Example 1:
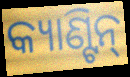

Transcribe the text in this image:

କ୍ୟାଣ୍ଟିନ୍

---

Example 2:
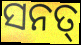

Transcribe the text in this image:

ସନତ୍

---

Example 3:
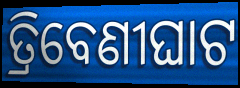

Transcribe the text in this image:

ତ୍ରିବେଣୀଘାଟ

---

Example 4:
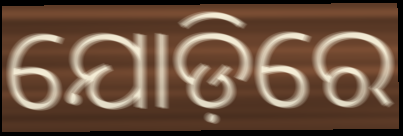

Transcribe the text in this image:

ଯୋଡ଼ିରେ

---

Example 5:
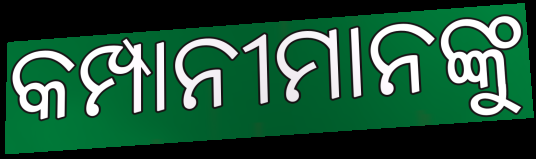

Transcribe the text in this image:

କମ୍ପାନୀମାନଙ୍କୁ